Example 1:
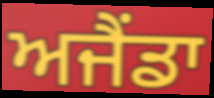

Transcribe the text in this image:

ਅਜੈਂਡਾ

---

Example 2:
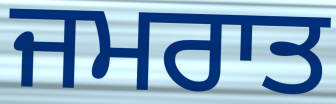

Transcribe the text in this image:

ਜਮਰਾਤ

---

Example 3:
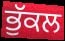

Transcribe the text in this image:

ਭੁੱਕਲ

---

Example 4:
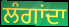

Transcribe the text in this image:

ਲੰਗਾਂਦਾ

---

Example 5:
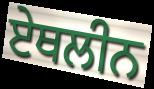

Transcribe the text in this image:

ਏਥਲੀਨ